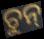
ଚୁନ୍